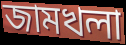
জামখলা